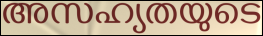
അസഹ്യതയുടെ